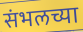
संभलच्या